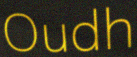
Oudh